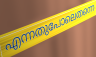
എന്നതുപോലെതന്നെ